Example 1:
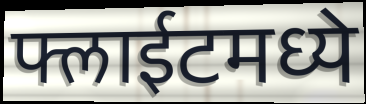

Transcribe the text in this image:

फ्लाईटमध्ये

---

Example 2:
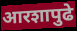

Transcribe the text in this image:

आरशापुढे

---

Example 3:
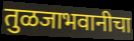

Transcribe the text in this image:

तुळजाभवानीचा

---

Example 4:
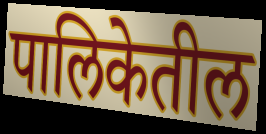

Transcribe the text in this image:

पालिकेतील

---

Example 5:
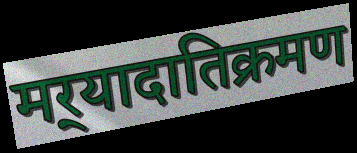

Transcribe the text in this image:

मर्यादातिक्रमण